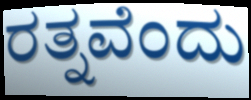
ರತ್ನವೆಂದು